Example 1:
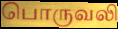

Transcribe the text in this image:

பொருவலி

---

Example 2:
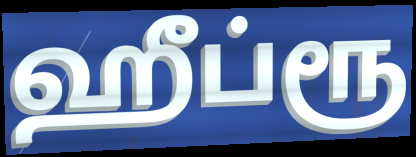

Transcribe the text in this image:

ஹீப்ரூ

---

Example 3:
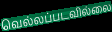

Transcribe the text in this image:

வெல்லப்படவில்லை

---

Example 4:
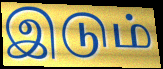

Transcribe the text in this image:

இடும்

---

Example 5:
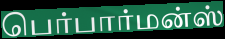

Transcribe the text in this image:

பெர்பார்மன்ஸ்